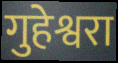
गुहेश्वरा